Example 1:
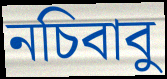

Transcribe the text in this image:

নচিবাবু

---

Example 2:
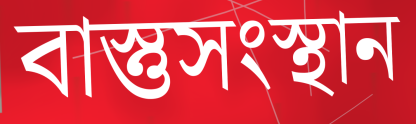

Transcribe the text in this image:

বাস্তুসংস্থান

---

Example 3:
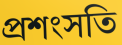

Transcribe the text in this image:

প্রশংসতি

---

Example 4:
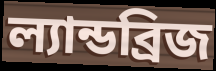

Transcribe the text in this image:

ল্যান্ডব্রিজ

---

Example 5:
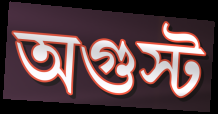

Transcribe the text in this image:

অগুস্ট